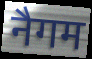
नैगम